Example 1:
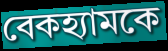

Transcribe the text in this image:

বেকহ্যামকে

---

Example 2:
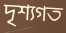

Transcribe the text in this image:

দৃশ্যগত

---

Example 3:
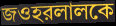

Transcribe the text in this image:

জওহরলালকে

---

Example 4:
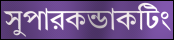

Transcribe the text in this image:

সুপারকন্ডাকটিং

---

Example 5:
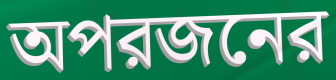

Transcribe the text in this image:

অপরজনের